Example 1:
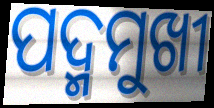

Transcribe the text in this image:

ପଦ୍ମମୁଖୀ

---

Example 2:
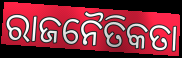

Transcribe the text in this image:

ରାଜନୈତିକତା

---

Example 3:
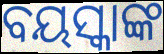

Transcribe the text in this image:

ବୟସ୍କାଙ୍କ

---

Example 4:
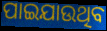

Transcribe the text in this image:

ପାଇଯାଉଥିବ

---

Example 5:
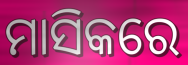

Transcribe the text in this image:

ମାସିକରେ